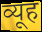
व्यूह